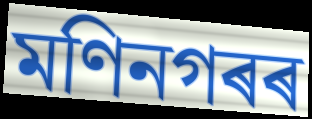
মণিনগৰৰ